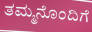
ತಮ್ಮನೊಂದಿಗೆ